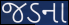
જડના